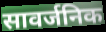
सावर्जनिक